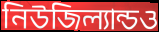
নিউজিল্যান্ডও